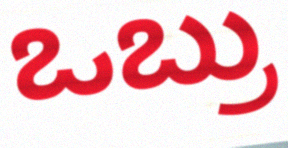
ಒಬ್ರು